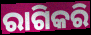
ରାଗିକରି